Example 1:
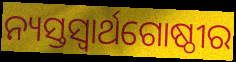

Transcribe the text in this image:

ନ୍ୟସ୍ତସ୍ୱାର୍ଥଗୋଷ୍ଠୀର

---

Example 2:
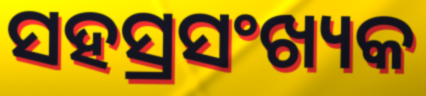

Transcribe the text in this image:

ସହସ୍ରସଂଖ୍ୟକ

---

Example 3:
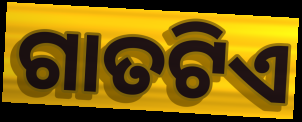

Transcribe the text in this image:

ଗାତଟିଏ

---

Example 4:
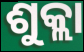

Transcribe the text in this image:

ଶୁକ୍ଲା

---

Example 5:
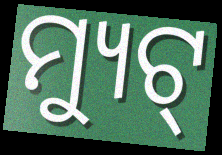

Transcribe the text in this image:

ମ୍ୟୁଟ୍